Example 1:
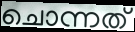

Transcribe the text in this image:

ചൊന്നത്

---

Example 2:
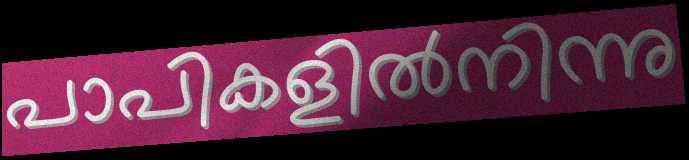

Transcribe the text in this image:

പാപികളിൽനിന്നു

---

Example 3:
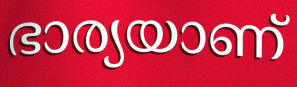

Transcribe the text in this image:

ഭാര്യയാണ്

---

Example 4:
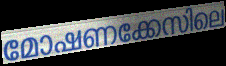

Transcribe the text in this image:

മോഷണക്കേസിലെ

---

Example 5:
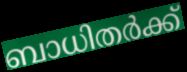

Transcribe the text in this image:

ബാധിതർക്ക്